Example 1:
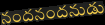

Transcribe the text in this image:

నందనందనుడు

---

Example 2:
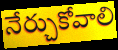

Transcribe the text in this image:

నేర్చుకోవాలి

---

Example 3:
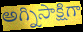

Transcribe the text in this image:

అగ్నిసాక్షిగా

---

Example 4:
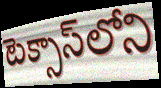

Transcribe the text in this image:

టెక్సాస్‌లోని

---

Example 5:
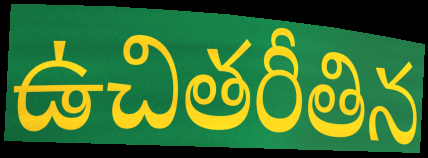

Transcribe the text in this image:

ఉచితరీతిన